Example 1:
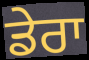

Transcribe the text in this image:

ਡੇਰਾ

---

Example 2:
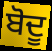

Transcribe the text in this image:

ਬੋਦੂ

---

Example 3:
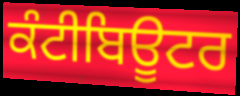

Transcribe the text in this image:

ਕੰਟੀਬਿਊਟਰ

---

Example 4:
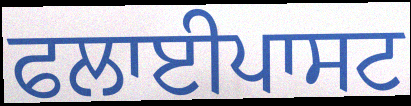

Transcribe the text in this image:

ਫਲਾਈਪਾਸਟ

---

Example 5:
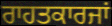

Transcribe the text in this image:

ਰਾਹਤਕਾਰਜਾਂ